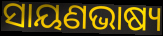
ସାୟଣଭାଷ୍ୟ